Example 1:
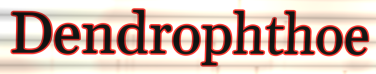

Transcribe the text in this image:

Dendrophthoe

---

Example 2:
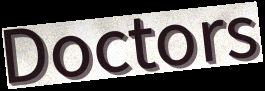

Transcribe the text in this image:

Doctors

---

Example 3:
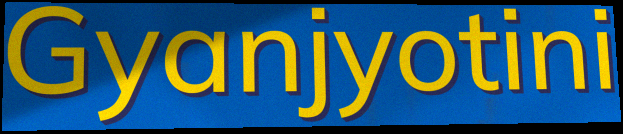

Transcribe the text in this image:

Gyanjyotini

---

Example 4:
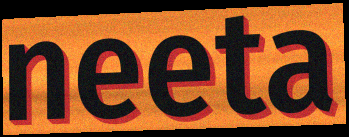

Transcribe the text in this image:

neeta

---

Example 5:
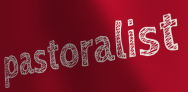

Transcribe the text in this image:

pastoralist